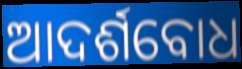
ଆଦର୍ଶବୋଧ